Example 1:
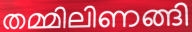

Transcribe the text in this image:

തമ്മിലിണങ്ങി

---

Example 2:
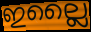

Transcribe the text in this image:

ഇല്ലൈ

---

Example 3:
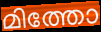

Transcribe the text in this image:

മിത്തോ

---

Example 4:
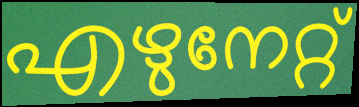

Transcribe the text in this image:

എഴുനേറ്റ്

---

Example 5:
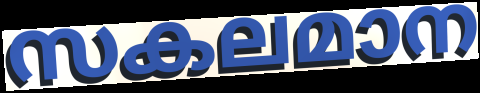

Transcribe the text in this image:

സകലമാന